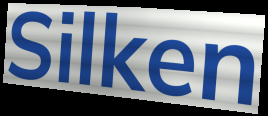
Silken